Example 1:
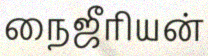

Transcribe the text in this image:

நைஜீரியன்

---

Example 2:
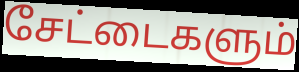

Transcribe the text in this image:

சேட்டைகளும்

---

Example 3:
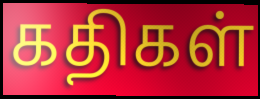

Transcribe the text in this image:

கதிகள்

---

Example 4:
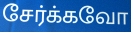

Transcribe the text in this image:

சேர்க்கவோ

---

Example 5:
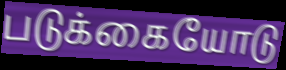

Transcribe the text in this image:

படுக்கையோடு